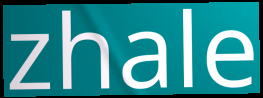
zhale